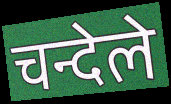
चन्देले